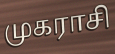
முகராசி